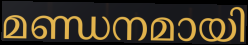
മണ്ഡനമായി